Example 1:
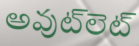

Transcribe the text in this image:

అవుట్‌లెట్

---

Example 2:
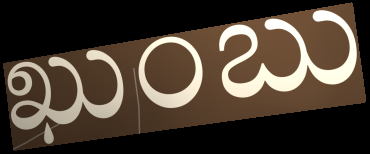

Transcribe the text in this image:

ఖుంబు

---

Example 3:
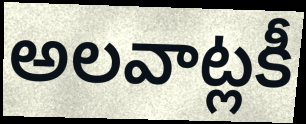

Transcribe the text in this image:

అలవాట్లకీ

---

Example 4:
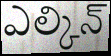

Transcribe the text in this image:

ఎల్కిన్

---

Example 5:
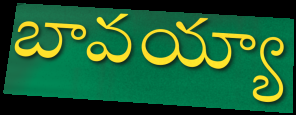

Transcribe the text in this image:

బావయ్యా